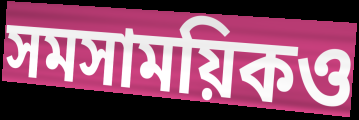
সমসাময়িকও